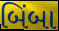
બિંબા